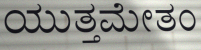
ಯುತ್ತಮೇತಂ